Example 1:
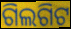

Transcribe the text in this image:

ଗିଲଗିଟ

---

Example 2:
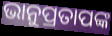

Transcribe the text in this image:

ଭାନୁପ୍ରତାପଙ୍କ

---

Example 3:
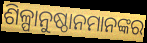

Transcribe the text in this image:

ଶିଳ୍ପାନୁଷ୍ଠାନମାନଙ୍କର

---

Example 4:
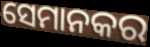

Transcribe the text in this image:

ସେମାନକର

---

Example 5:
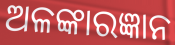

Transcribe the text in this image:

ଅଳଙ୍କାରଜ୍ଞାନ